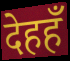
देहहँ